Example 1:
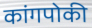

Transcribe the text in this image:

कांगपोकी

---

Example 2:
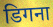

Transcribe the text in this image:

डिगना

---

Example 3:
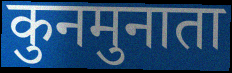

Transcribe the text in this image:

कुनमुनाता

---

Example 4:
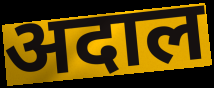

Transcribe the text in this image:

अदाल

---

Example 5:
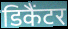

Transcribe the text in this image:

डिकैंटर